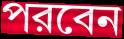
পরবেন